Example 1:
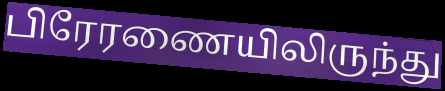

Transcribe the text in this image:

பிரேரணையிலிருந்து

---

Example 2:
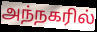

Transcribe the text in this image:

அந்நகரில்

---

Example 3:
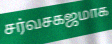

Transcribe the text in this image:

சர்வசகஜமாக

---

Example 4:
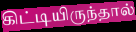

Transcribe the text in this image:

கிட்டியிருந்தால்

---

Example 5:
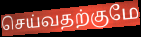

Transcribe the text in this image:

செய்வதற்குமே